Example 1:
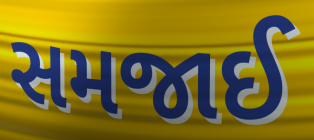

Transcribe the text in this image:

સમજાઈ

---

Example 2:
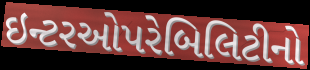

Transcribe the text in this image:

ઇન્ટરઓપરેબિલિટીનો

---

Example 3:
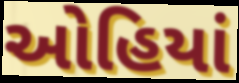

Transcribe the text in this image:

ઓહિયાં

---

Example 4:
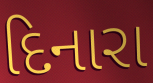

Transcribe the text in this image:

દિનારા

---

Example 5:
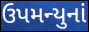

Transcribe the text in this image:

ઉપમન્યુનાં